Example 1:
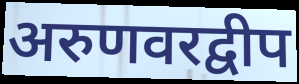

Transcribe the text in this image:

अरुणवरद्वीप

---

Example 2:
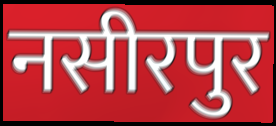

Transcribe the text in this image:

नसीरपुर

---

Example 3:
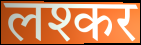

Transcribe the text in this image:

लश्‍कर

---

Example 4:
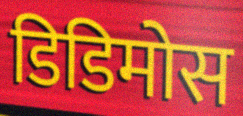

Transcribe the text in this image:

डिडिमोस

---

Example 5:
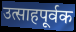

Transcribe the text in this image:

उत्‍साहपूर्वक